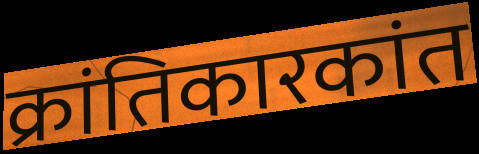
क्रांतिकारकांत